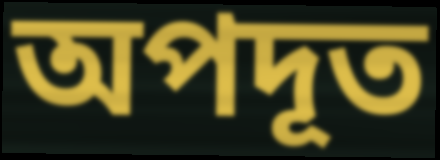
অপদূত